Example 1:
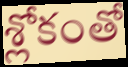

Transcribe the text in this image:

శ్లోకంతో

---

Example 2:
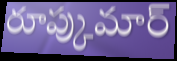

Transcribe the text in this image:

రూప్కుమార్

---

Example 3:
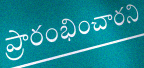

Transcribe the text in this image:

ప్రారంభించారని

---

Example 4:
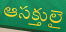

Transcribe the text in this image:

ఆసక్తులై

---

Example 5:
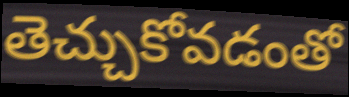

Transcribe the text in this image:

తెచ్చుకోవడంతో